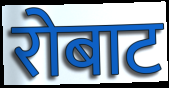
रोबाट